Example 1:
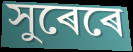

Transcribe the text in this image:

সুৰেৰে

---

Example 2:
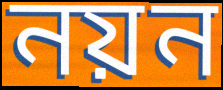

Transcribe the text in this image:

নয়ন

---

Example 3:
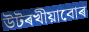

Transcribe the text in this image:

উটৰখীয়াবোৰ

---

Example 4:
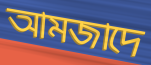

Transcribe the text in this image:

আমজাদে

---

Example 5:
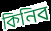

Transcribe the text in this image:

কিনিব